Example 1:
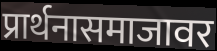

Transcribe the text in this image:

प्रार्थनासमाजावर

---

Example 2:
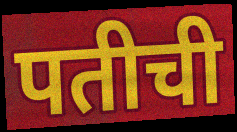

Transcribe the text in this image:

पतीची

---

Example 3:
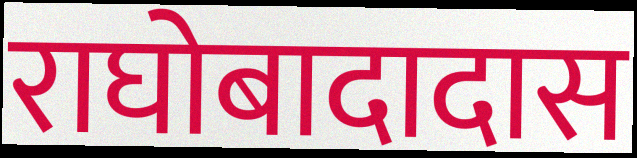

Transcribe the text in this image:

राघोबादादास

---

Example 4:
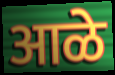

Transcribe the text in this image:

आळे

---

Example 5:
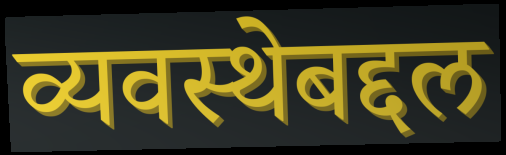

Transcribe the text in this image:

व्यवस्थेबद्दल